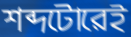
শব্দটোৱেই